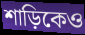
শাড়িকেও